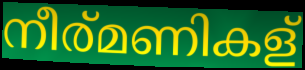
നീര്മണികള്